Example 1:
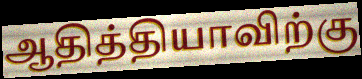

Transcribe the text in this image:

ஆதித்தியாவிற்கு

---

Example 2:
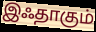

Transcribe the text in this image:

இஃதாகும்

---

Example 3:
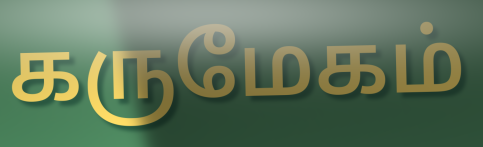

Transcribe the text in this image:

கருமேகம்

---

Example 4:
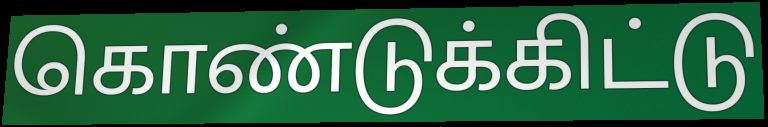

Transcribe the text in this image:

கொண்டுக்கிட்டு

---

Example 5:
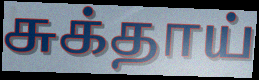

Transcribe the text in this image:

சுக்தாய்